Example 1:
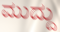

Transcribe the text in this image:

ಮುದ್ದು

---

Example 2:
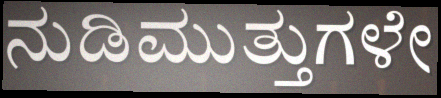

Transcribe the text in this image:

ನುಡಿಮುತ್ತುಗಳೇ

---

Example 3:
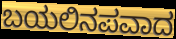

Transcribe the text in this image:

ಬಯಲಿನಪವಾದ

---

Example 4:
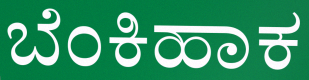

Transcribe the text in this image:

ಬೆಂಕಿಹಾಕ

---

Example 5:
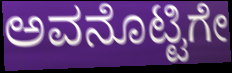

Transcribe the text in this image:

ಅವನೊಟ್ಟಿಗೇ